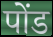
पोंड